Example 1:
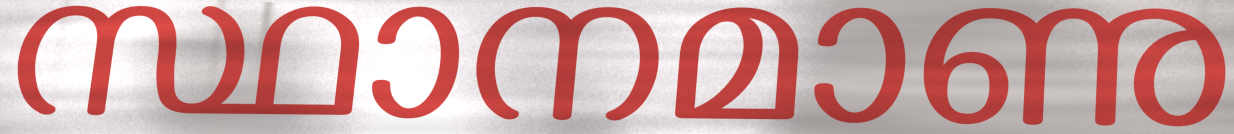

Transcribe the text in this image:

സ്ഥാനമാണു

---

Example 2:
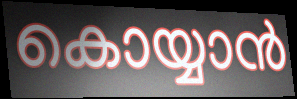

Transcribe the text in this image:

കൊയ്യാൻ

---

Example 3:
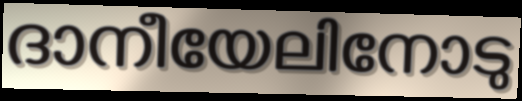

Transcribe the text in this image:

ദാനീയേലിനോടു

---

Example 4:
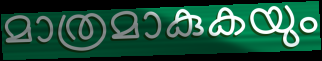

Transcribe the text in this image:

മാത്രമാകുകയും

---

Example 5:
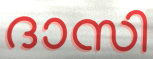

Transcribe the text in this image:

ദാസി